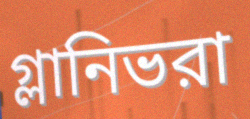
গ্লানিভরা